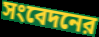
সংবেদনের